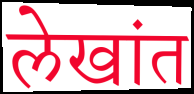
लेखांत